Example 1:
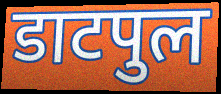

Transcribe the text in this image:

डाटपुल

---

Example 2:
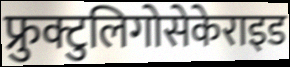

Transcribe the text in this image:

फ्रुक्टुलिगोसेकेराइड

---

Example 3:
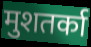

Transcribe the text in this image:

मुशतर्का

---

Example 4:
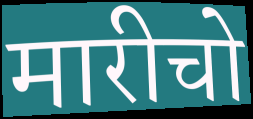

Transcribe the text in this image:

मारीचो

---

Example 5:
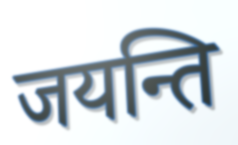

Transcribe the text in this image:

जयन्ति